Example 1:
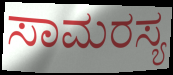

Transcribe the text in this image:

ಸಾಮರಸ್ಯ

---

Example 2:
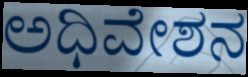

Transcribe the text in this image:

ಅಧಿವೇಶನ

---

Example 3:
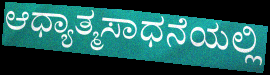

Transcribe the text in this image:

ಆಧ್ಯಾತ್ಮಸಾಧನೆಯಲ್ಲಿ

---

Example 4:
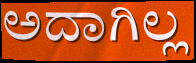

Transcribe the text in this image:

ಅದಾಗಿಲ್ಲ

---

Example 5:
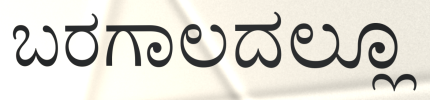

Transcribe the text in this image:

ಬರಗಾಲದಲ್ಲೂ